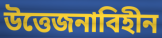
উত্তেজনাবিহীন